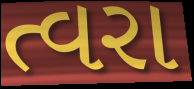
ત્વરા